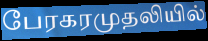
பேரகரமுதலியில்